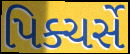
પિક્ચર્સે